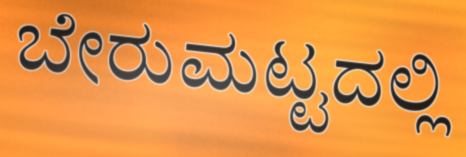
ಬೇರುಮಟ್ಟದಲ್ಲಿ